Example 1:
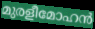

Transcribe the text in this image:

മുരളീമോഹൻ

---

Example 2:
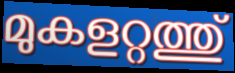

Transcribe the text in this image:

മുകളറ്റത്തു്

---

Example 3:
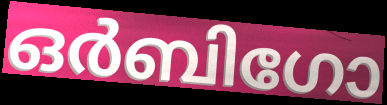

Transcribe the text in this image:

ഒർബിഗോ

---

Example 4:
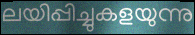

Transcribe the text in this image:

ലയിപ്പിച്ചുകളയുന്നു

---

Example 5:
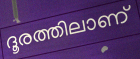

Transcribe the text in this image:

ദൂരത്തിലാണ്